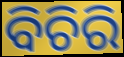
ବିଚିରି